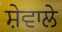
ਸ਼ੇਵਾਲੇ